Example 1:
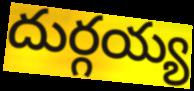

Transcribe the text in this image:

దుర్గయ్య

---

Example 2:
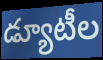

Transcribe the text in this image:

డ్యూటీల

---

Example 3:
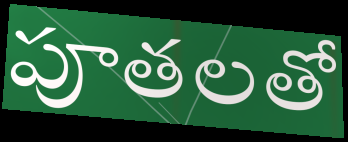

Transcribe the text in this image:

పూతలతో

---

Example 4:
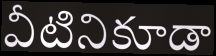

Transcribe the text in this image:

వీటినికూడా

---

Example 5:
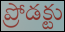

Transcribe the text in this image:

ప్రోడక్టు